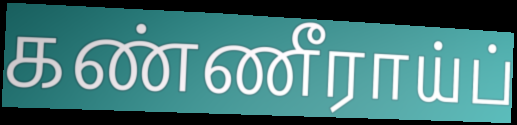
கண்ணீராய்ப்